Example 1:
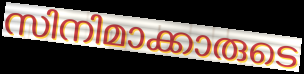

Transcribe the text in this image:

സിനിമാക്കാരുടെ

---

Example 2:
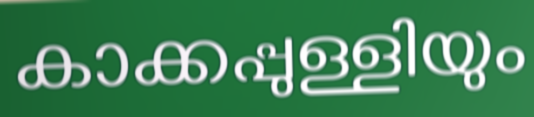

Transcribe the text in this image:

കാക്കപ്പുള്ളിയും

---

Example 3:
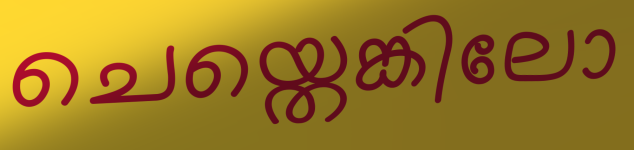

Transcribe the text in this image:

ചെയ്തെങ്കിലോ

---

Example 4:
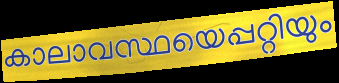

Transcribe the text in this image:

കാലാവസ്ഥയെപ്പറ്റിയും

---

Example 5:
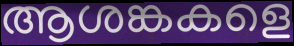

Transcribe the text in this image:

ആശങ്കകളെ